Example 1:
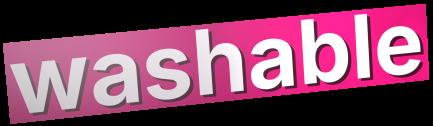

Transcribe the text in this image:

washable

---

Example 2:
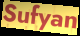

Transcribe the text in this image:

Sufyan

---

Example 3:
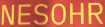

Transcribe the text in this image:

NESOHR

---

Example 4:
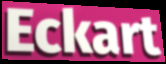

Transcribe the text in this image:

Eckart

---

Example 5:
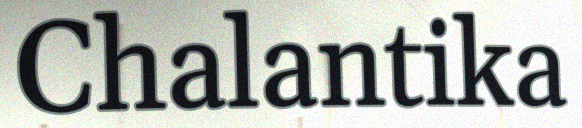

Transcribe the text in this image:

Chalantika